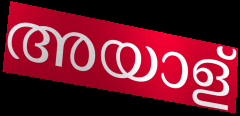
അയാള്